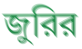
জুরির